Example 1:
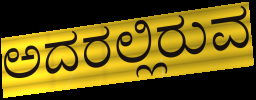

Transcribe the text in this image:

ಅದರಲ್ಲಿರುವ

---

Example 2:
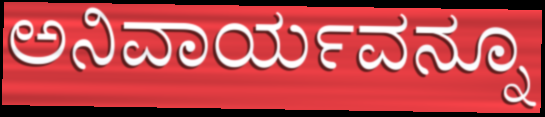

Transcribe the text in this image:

ಅನಿವಾರ್ಯವನ್ನೂ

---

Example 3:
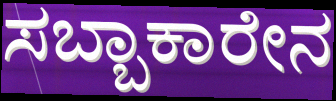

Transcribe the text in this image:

ಸಬ್ಬಾಕಾರೇನ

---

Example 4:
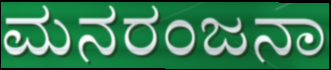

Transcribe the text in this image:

ಮನರಂಜನಾ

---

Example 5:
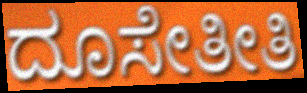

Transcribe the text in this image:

ದೂಸೇತೀತಿ